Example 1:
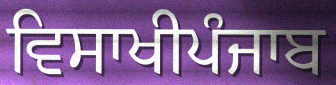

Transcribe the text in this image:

ਵਿਸਾਖੀਪੰਜਾਬ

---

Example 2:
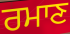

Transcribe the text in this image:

ਰਮਾਣ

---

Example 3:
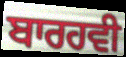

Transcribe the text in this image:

ਬਾਰਹਵੀ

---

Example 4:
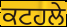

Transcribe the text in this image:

ਕਟਹਲੇ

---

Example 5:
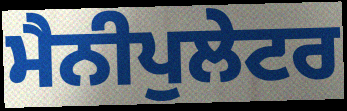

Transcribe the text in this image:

ਮੈਨੀਪੁਲੇਟਰ